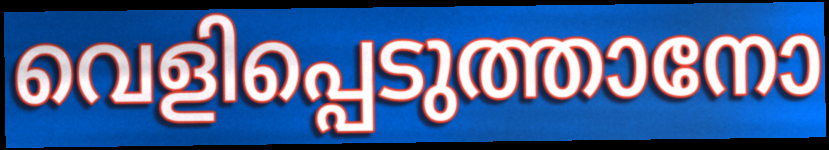
വെളിപ്പെടുത്താനോ